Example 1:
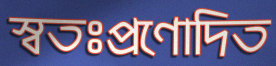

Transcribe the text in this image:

স্বতঃপ্রণোদিত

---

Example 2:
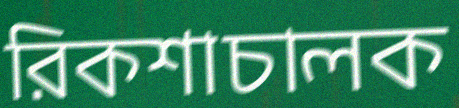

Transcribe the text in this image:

রিকশাচালক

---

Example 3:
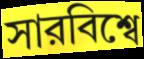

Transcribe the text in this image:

সারবিশ্বে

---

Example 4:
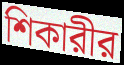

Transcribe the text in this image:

শিকারীর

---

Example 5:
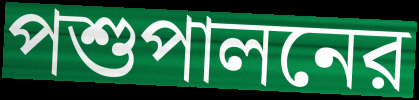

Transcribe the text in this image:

পশুপালনের